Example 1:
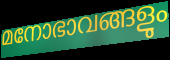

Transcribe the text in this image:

മനോഭാവങ്ങളും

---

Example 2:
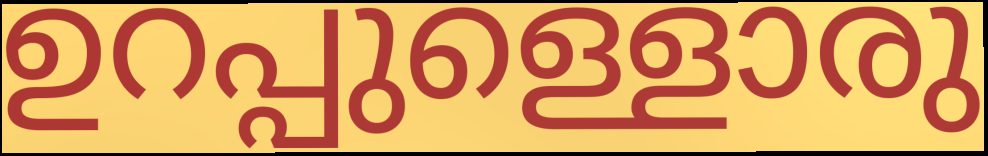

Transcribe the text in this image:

ഉറപ്പുള്ളൊരു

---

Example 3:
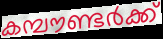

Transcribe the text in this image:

കമ്പൗണ്ടർക്ക്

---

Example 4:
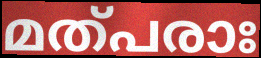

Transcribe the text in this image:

മത്പരാഃ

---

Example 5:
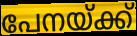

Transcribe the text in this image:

പേനയ്ക്ക്